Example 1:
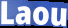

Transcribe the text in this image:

Laou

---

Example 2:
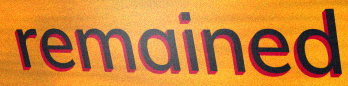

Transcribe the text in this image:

remained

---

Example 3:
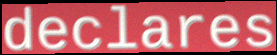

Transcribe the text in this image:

declares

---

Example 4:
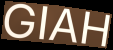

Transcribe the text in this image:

GIAH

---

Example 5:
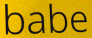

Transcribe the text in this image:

babe